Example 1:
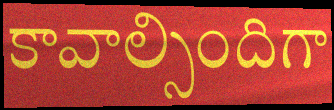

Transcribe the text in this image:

కావాల్సిందిగా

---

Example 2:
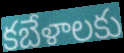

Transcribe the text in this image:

కబేళాలకు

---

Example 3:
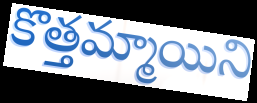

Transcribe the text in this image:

కొత్తమ్మాయిని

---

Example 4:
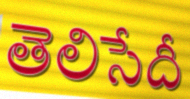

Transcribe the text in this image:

తెలిసేదీ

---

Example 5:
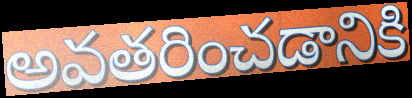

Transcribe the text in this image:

అవతరించడానికి